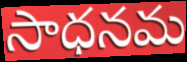
సాధనమ